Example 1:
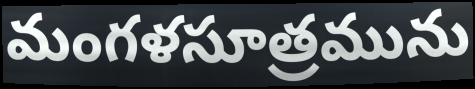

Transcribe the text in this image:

మంగళసూత్రమును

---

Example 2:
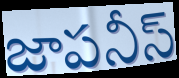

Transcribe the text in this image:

జాపనీస్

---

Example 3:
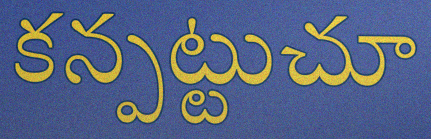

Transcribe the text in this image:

కన్పట్టుచూ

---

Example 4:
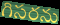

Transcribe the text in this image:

గిసరను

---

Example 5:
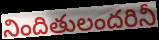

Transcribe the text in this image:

నిందితులందరినీ